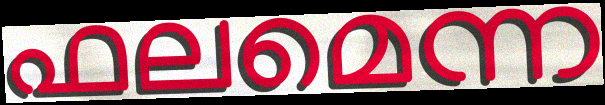
ഫലമെന്ന